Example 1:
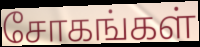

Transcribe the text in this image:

சோகங்கள்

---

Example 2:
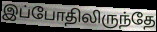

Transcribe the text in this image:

இப்போதிலிருந்தே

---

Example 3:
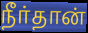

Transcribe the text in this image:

நீர்தான்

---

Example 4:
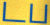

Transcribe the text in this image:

டப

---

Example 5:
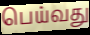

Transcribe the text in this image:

பெய்வது